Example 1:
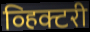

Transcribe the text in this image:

व्हिक्टरी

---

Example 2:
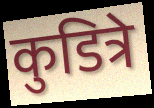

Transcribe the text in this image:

कुडित्रे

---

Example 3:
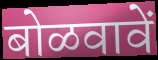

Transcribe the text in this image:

बोळवावें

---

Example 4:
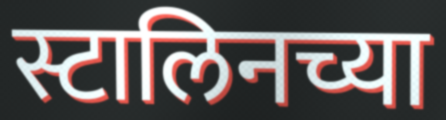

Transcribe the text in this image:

स्टालिनच्या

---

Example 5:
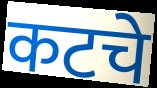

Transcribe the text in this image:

कटचे